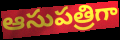
ఆసుపత్రిగా